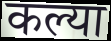
कल्या